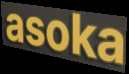
asoka